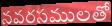
నవరసములతో